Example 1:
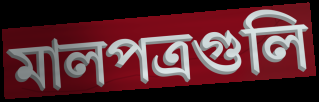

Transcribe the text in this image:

মালপত্রগুলি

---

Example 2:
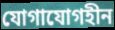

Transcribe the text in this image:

যোগাযোগহীন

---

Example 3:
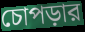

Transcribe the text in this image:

চোপড়ার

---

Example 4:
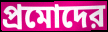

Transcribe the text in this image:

প্রমোদের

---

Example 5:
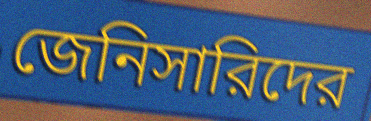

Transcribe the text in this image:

জেনিসারিদের